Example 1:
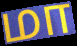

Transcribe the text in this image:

மா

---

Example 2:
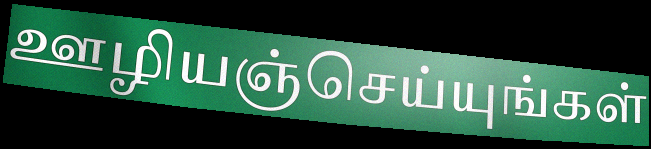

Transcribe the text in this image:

ஊழியஞ்செய்யுங்கள்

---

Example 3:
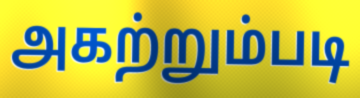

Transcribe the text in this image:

அகற்றும்படி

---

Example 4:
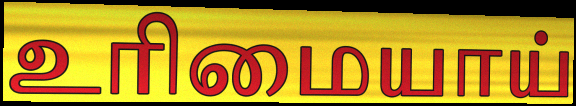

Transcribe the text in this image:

உரிமையாய்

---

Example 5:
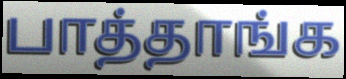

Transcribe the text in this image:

பாத்தாங்க